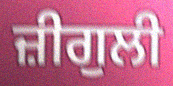
ਜ਼ੀਗੁਲੀ